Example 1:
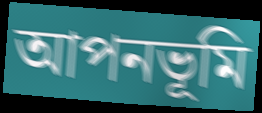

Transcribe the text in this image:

আপনভূমি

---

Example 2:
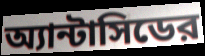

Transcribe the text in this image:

অ্যান্টাসিডের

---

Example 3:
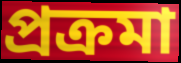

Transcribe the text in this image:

প্রক্রমা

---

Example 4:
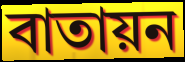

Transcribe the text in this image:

বাতায়ন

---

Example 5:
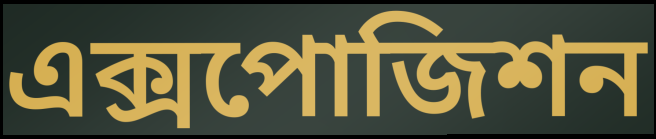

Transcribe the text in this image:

এক্সপোজিশন